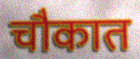
चौकात